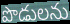
పొడులను